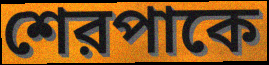
শেরপাকে